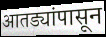
आतड्यांपासून